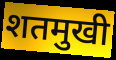
शतमुखी